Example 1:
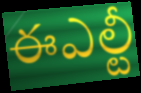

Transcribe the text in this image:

ఈఎల్టీ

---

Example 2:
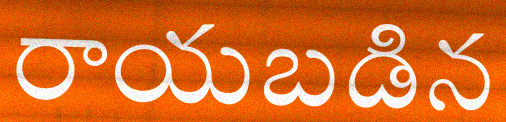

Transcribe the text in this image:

రాయబడిన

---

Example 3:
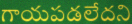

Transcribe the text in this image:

గాయపడలేదని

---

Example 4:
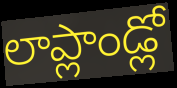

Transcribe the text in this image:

లాప్లాండ్లో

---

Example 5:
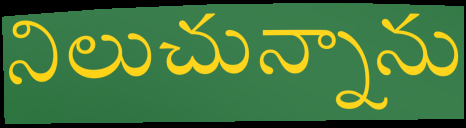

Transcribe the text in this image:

నిలుచున్నాను